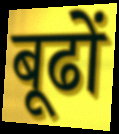
बूढों